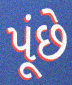
પૂંછે